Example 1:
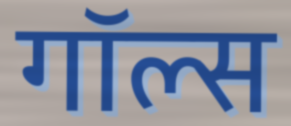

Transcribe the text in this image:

गॉल्स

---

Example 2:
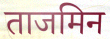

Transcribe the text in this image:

ताजमिन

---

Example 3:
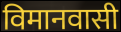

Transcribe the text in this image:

विमानवासी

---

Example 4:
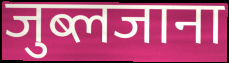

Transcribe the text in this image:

जुब्लजाना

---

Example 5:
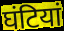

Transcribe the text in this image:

घंटियां